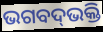
ଭଗବଦ୍‌ଭକ୍ତି